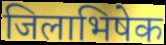
जिलाभिषेक